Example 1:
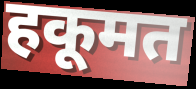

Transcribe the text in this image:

हकूमत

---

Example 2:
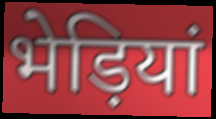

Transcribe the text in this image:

भेड़ियां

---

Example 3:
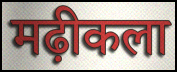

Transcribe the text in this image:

मढ़ीकला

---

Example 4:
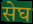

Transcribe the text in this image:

सेघ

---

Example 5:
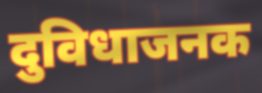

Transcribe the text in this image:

दुविधाजनक